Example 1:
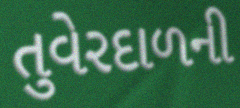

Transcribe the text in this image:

તુવેરદાળની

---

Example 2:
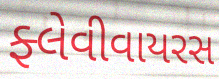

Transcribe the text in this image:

ફ્લેવીવાયરસ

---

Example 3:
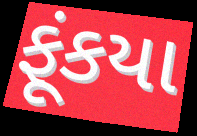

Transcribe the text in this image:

ફૂંકયા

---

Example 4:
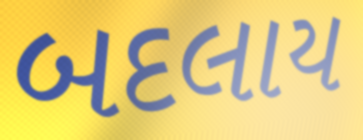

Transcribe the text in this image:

બદલાય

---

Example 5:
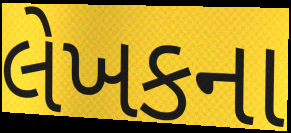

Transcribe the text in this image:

લેખકના